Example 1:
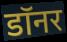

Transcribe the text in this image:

डॉनर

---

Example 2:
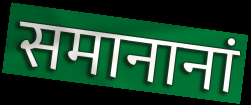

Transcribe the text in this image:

समानानां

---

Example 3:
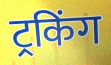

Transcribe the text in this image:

ट्रकिंग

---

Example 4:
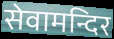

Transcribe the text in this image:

सेवामन्दिर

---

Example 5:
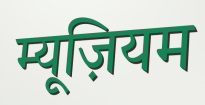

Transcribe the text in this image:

म्यूज़ियम